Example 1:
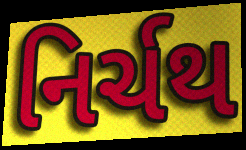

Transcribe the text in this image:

નિર્ચથ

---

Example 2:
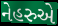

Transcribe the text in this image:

નેહરુએ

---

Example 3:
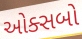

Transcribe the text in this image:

ઓક્સબો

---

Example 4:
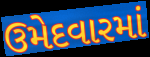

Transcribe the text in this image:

ઉમેદવારમાં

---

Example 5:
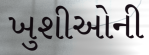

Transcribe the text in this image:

ખુશીઓની